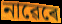
নাৱেৰে